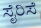
ಸೈರಿಸೆ